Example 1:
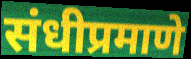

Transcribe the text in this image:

संधीप्रमाणे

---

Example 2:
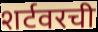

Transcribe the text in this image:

शर्टवरची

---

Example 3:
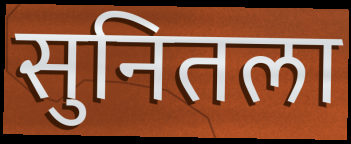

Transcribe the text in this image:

सुनितला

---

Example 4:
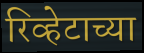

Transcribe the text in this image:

रिव्हेटाच्या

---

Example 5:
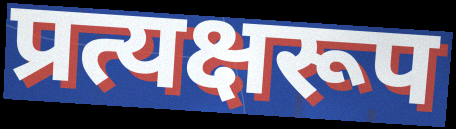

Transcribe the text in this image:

प्रत्यक्षरूप